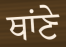
ਥਾਂਣੇ